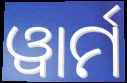
ୱାର୍ମ